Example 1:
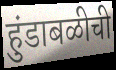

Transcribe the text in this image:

हुंडाबळीची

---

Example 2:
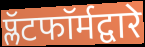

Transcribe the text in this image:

प्लॅटफॉर्मद्वारे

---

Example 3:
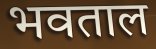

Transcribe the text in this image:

भवताल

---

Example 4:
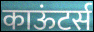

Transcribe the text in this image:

काऊंटर्स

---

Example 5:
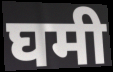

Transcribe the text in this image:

घमी